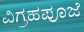
ವಿಗ್ರಹಪೂಜೆ